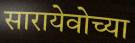
सारायेवोच्या